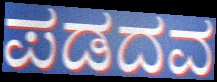
ಪಡದವ